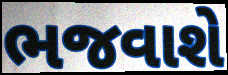
ભજવાશે